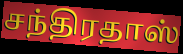
சந்திரதாஸ்